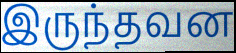
இருந்தவன